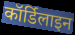
कॉर्डिलाइन